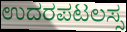
ಉದರಪಟಲಸ್ಸ